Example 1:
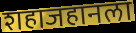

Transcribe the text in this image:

शहाजहानला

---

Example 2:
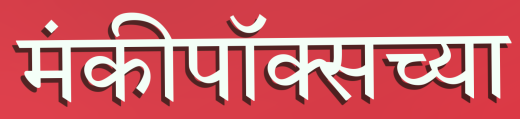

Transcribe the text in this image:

मंकीपॉक्सच्या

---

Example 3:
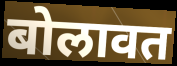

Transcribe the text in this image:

बोलावत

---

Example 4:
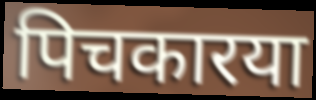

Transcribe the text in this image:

पिचकारया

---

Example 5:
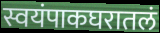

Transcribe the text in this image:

स्वयंपाकघरातलं